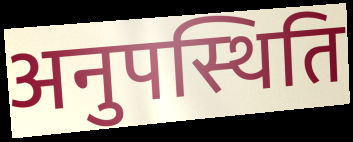
अनुपस्थिति